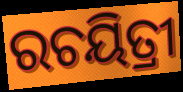
ରଚୟିତ୍ରୀ